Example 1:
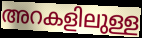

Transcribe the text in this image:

അറകളിലുള്ള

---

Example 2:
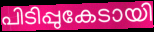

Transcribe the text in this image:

പിടിപ്പുകേടായി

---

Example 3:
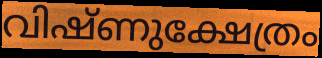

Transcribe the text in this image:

വിഷ്ണുക്ഷേത്രം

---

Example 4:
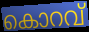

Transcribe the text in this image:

കൊറവ്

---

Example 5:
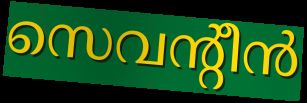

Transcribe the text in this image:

സെവന്റീൻ